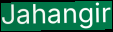
Jahangir